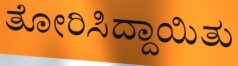
ತೋರಿಸಿದ್ದಾಯಿತು